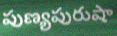
పుణ్యపురుషా